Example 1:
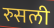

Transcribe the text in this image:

रुसली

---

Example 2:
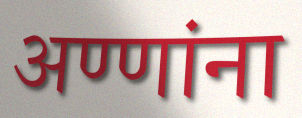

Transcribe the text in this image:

अण्णांना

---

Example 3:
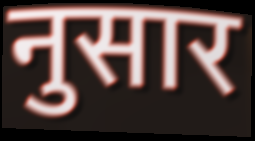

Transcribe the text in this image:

नुसार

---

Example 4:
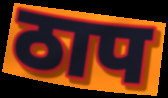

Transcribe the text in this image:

ठाप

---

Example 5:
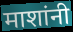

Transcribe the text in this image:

माशांनी